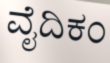
ವೈದಿಕಂ